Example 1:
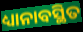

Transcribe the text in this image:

ଧ୍ୟାନାବସ୍ଥିତ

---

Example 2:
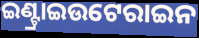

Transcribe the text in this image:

ଇଣ୍ଟ୍ରାଇଉଟେରାଇନ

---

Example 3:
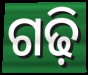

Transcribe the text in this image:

ଗଢ଼ି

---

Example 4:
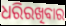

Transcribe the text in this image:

ଧରିରଖିବାର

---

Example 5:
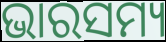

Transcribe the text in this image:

ଭାରସମ୍ୟ